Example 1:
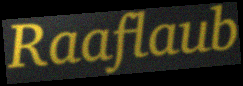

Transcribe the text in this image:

Raaflaub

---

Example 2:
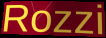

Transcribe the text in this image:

Rozzi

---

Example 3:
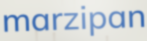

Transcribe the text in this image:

marzipan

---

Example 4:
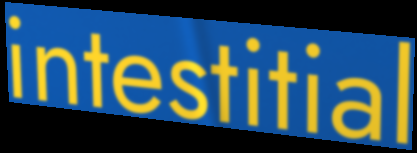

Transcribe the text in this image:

intestitial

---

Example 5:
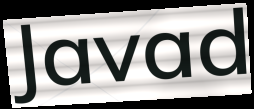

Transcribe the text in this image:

Javad